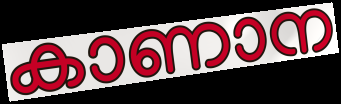
കാണാന